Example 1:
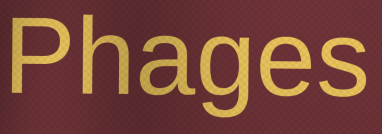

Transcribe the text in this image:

Phages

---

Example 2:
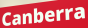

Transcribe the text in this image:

Canberra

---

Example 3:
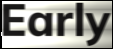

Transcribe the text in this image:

Early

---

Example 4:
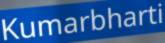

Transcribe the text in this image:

Kumarbharti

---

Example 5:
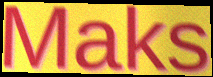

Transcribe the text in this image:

Maks